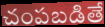
చంపబడితే